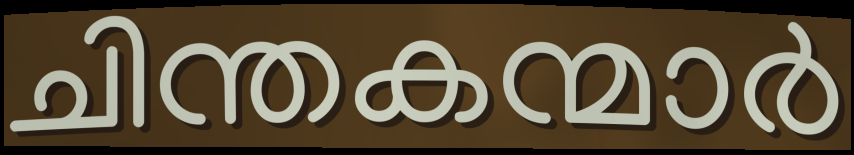
ചിന്തകന്മാർ